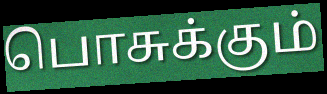
பொசுக்கும்